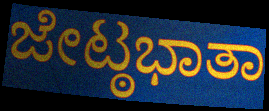
ಜೇಟ್ಠಭಾತಾ